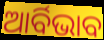
ଆର୍ବିଭାବ